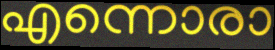
എന്നൊരാ